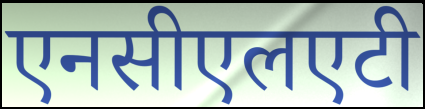
एनसीएलएटी